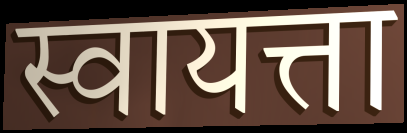
स्वायत्ता